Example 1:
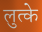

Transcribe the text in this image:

लुत्के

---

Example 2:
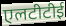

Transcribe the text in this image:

एलटीटीई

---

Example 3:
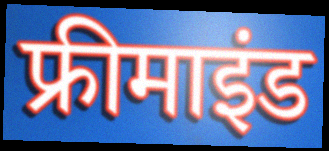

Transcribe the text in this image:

फ्रीमाइंड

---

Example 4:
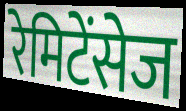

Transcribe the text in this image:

रेमिटेंसेज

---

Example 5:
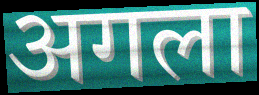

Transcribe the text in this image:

अगला